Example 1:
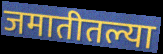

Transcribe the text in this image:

जमातीतल्या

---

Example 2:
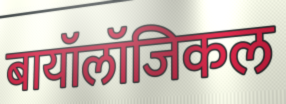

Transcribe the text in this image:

बायॉलॉजिकल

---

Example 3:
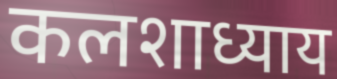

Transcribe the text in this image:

कलशाध्याय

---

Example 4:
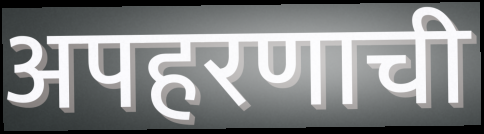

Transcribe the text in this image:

अपहरणाची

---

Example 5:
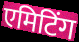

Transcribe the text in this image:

एमिटिंग